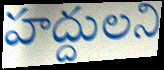
హద్దులని